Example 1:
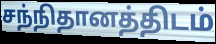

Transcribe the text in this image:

சந்நிதானத்திடம்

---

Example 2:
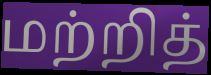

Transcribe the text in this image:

மற்றித்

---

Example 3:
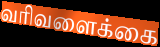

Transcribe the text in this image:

வரிவளைக்கை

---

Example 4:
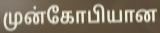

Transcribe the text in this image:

முன்கோபியான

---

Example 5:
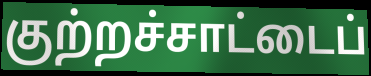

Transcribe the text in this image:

குற்றச்சாட்டைப்